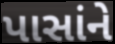
પાસાંને